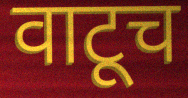
वाटूच